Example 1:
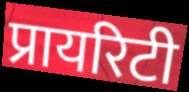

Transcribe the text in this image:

प्रायरिटी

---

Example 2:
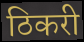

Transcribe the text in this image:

ठिकरी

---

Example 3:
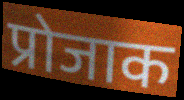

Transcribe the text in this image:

प्रोजाक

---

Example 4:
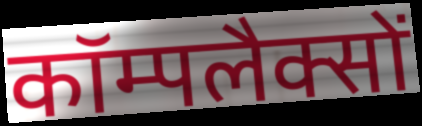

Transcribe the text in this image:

कॉम्पलैक्सों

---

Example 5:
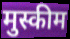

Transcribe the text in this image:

मुस्कीम